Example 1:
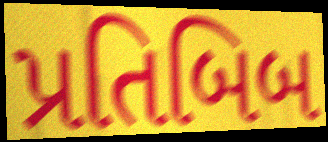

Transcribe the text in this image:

પ્રતિબિબ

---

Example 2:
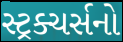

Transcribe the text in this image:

સ્ટ્રક્ચર્સનો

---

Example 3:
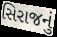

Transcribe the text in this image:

સિરાજનું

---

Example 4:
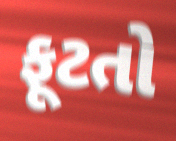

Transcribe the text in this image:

ફૂટતો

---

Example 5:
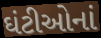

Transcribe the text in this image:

ઘંટીઓનાં